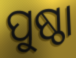
ପୁଷ୍ଠା